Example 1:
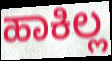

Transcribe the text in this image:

ಹಾಕಿಲ್ಲ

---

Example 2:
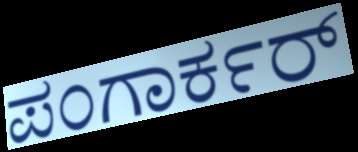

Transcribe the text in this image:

ಪಂಗಾರ್ಕರ್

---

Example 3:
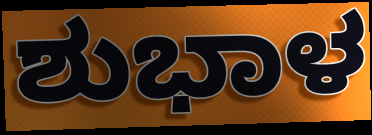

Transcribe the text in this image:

ಶುಭಾಳ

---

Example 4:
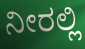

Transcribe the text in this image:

ನೀರಲ್ಲಿ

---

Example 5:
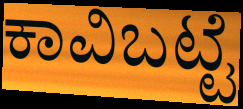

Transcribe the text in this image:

ಕಾವಿಬಟ್ಟೆ